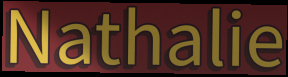
Nathalie